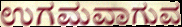
ಉಗಮವಾಗುವ